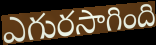
ఎగురసాగింది